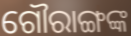
ଗୌରାଙ୍ଗଙ୍କ